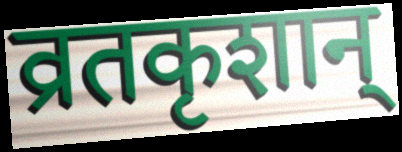
व्रतकृशान्